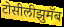
टोसीलीझुमॅब